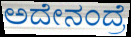
ಅದೇನಂದ್ರೆ